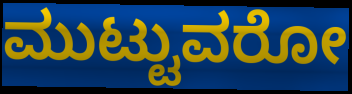
ಮುಟ್ಟುವರೋ